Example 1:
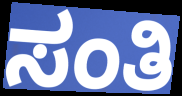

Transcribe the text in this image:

ಸಂತಿ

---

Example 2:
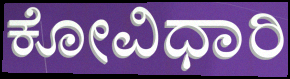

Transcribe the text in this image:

ಕೋವಿಧಾರಿ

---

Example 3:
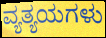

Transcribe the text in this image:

ವ್ಯತ್ಯಯಗಳು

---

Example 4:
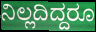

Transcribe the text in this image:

ನಿಲ್ಲದಿದ್ದರೂ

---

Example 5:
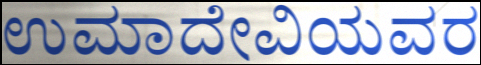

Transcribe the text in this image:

ಉಮಾದೇವಿಯವರ